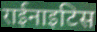
राईनाइटिस